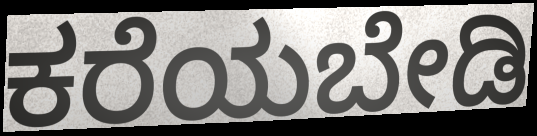
ಕರೆಯಬೇಡಿ